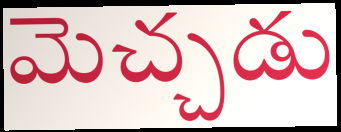
మెచ్చడు